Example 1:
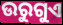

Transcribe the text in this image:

ଉରୁଗୁଏ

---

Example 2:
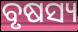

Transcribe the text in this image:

ବୃଷସ୍ୟ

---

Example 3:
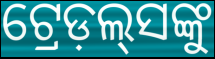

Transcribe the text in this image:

ଟ୍ରେଡ଼ଲ୍‍ସଙ୍କୁ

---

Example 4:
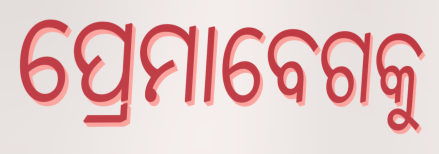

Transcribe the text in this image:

ପ୍ରେମାବେଗକୁ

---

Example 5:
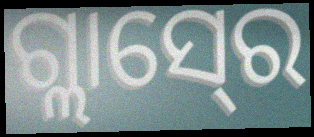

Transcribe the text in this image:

ଗ୍ଲାସ୍‍ରେ